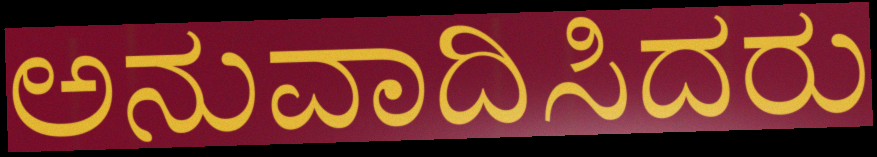
ಅನುವಾದಿಸಿದರು